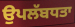
ਉਪਲੱਬਧਤਾ